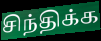
சிந்திக்க